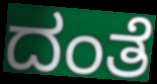
ದಂತೆ